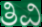
ತಿವಿ